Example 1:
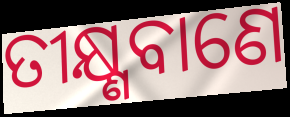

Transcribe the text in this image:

ତୀକ୍ଷ୍ଣବାଣେ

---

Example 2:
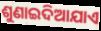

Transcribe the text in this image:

ଶୁଣାଇଦିଆଯାଏ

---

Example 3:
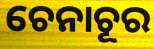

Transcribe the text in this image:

ଚେନାଚୂର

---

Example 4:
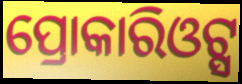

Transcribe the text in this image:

ପ୍ରୋକାରିଓଟ୍ସ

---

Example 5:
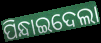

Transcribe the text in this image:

ପିନ୍ଧାଇଦେଲା